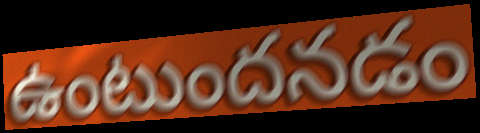
ఉంటుందనడం